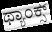
ಥ್ಯಾಂಕ್ಸ್